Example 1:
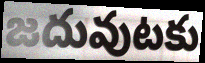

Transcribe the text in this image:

జదువుటకు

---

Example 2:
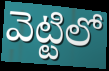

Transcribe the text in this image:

వెట్టిలో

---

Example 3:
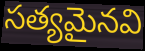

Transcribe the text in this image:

సత్యమైనవి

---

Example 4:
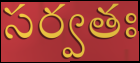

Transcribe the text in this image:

సర్వతః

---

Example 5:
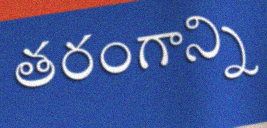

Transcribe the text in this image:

తరంగాన్ని